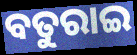
ବତୁରାଇ